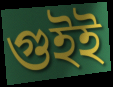
গুইই